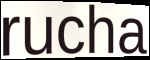
rucha